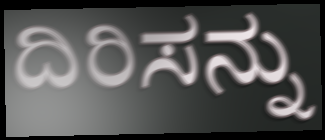
ದಿರಿಸನ್ನು